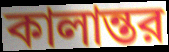
কালান্তর